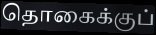
தொகைக்குப்